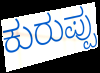
ಕುರುಪ್ಪು